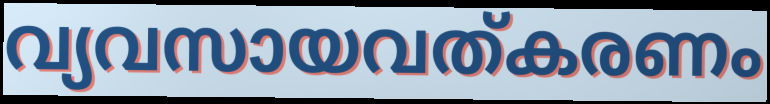
വ്യവസായവത്കരണം